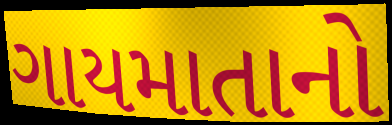
ગાયમાતાનો